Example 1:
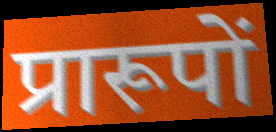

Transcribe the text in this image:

प्रारूपों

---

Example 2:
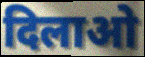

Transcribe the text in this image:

दिलाओ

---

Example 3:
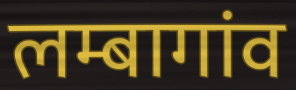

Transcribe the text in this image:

लम्बागांव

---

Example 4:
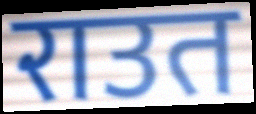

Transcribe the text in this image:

राउत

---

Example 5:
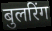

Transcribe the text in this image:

बुलरिंग